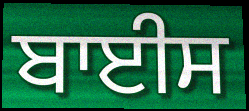
ਬਾਈਸ